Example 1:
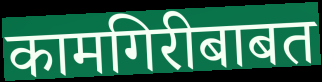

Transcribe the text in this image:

कामगिरीबाबत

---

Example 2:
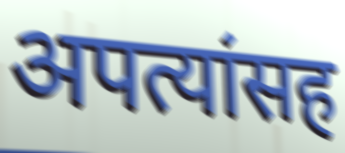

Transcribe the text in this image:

अपत्यांसह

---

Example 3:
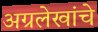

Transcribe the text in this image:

अग्रलेखांचे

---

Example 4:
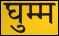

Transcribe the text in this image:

घुम्म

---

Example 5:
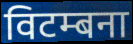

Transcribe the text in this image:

विटम्बना